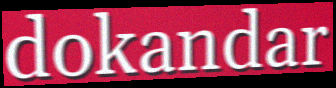
dokandar